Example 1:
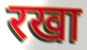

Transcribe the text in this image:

रखा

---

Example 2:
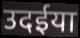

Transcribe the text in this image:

उदईया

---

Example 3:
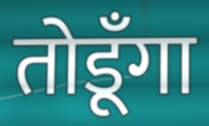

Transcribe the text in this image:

तोडूँगा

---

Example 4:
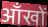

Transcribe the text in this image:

आँखों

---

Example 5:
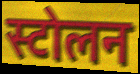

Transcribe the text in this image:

स्टोलन